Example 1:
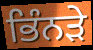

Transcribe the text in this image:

ਭਿੰਨੜੇ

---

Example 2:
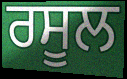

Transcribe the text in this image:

ਰਸੂਲ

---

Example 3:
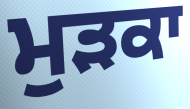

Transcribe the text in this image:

ਮੁੜਕਾ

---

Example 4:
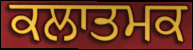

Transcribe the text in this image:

ਕਲਾਤਮਕ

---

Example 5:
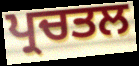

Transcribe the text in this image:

ਪ੍ਰਚਤਲ